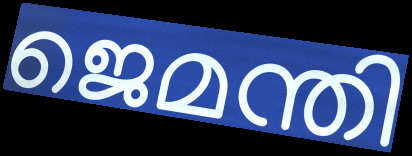
ജെമന്തി